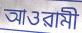
আওৱামী